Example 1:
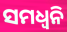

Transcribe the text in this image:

ସମଧ୍ୱନି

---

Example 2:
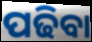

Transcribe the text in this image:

ପଢିବା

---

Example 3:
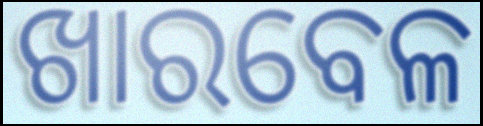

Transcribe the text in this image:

ଖାରବେଳ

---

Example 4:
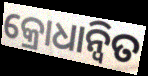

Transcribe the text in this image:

କ୍ରୋଧାନ୍ୱିତ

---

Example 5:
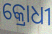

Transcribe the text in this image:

କ୍ରୋଧୀ